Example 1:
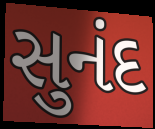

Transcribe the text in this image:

સુનંદ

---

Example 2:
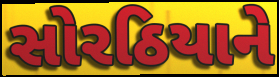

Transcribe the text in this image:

સોરઠિયાને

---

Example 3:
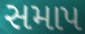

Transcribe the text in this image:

સમાપ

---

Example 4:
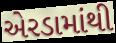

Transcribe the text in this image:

એરડામાંથી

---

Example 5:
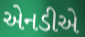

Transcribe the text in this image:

એનડીએ